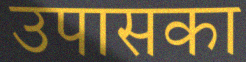
उपासका